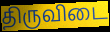
திருவிடை